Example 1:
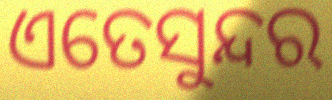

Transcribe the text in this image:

ଏତେସୁନ୍ଦର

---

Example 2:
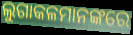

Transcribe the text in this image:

ଲୁଗାକଳମାନଙ୍କରେ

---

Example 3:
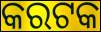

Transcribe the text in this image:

କରଟକ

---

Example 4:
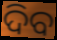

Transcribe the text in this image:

ଦିବ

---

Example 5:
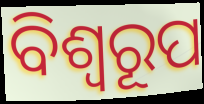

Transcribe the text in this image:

ବିଶ୍ବରୂପ